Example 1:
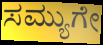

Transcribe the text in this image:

ಸಮ್ಯುಗೇ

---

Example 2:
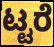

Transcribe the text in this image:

ಟ್ಟರೆ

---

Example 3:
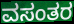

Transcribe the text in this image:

ವಸಂತರ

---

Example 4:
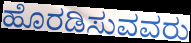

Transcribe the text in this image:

ಹೊರಡಿಸುವವರು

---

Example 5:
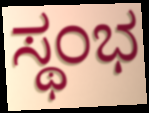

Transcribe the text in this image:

ಸ್ಥಂಭ